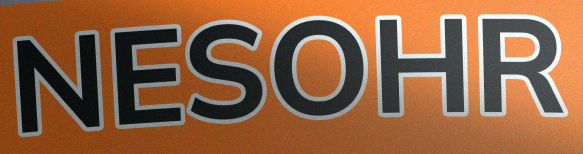
NESOHR